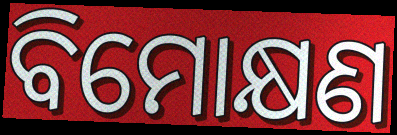
ବିମୋକ୍ଷଣ